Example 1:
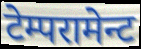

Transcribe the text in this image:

टेम्परामेन्ट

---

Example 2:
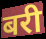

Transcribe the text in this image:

बरी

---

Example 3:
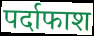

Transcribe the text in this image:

पर्दाफाश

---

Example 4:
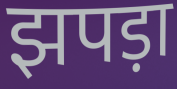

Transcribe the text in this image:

झपड़ा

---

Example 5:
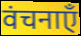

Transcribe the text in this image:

वंचनाएँ